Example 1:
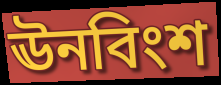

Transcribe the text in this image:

ঊনবিংশ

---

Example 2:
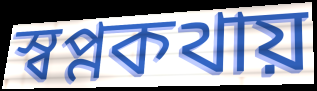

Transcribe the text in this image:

স্বপ্নকথায়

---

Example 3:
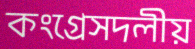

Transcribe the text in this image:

কংগ্রেসদলীয়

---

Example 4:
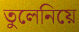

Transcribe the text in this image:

তুলেনিয়ে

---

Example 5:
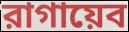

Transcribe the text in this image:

রাগায়েব